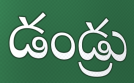
డండ్రు